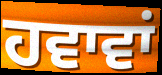
ਹਵਾਵਾਂ